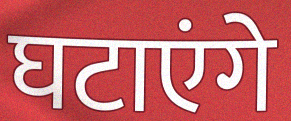
घटाएंगे